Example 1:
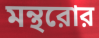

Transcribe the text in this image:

মন্থরোর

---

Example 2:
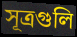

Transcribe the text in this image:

সূত্রগুলি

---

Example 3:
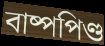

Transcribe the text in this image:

বাষ্পপিণ্ড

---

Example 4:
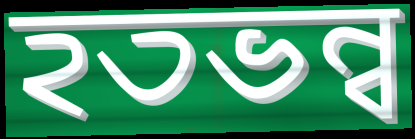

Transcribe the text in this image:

হতভন্ব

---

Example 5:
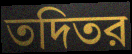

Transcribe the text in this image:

তদিতর